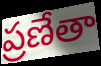
ప్రణేతా